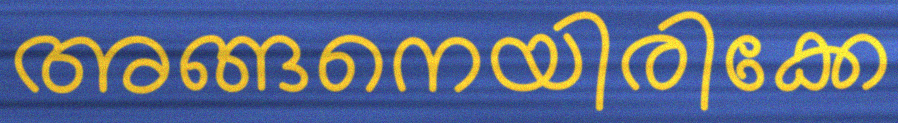
അങ്ങനെയിരിക്കേ